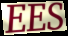
EES